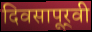
दिवसापूर्वी